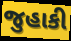
જુહાકી